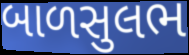
બાળસુલભ